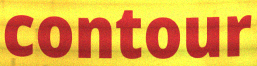
contour